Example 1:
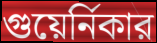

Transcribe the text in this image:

গুয়ের্নিকার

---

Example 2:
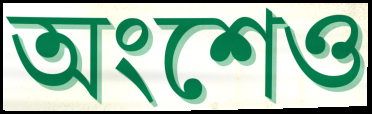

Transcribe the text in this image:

অংশেও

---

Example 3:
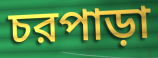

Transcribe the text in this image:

চরপাড়া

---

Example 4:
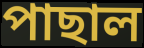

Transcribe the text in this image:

পাছাল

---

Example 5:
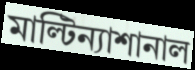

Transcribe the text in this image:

মাল্টিন্যাশানাল